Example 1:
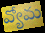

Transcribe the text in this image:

వ్యోమ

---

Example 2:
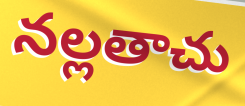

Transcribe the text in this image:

నల్లతాచు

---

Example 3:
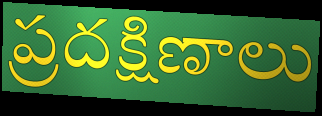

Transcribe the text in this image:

ప్రదక్షిణాలు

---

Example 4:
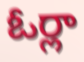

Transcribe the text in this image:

ఓర్లా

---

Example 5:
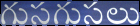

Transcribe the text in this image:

గుసగుసలు